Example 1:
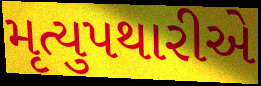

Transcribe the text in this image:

મૃત્યુપથારીએ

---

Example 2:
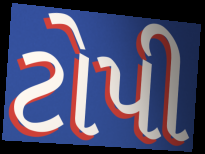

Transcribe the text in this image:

ટોપી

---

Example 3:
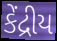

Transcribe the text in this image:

કેંદ્રીય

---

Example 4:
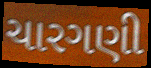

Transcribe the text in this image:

ચારગણી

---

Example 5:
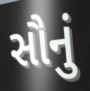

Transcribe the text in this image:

સૌનું